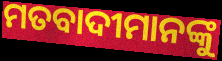
ମତବାଦୀମାନଙ୍କୁ